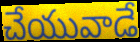
చేయువాడే